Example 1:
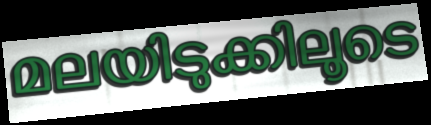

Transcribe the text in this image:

മലയിടുക്കിലൂടെ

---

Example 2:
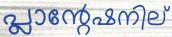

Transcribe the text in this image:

പ്ലാന്റേഷനില്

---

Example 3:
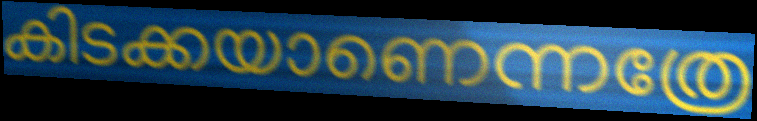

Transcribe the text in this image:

കിടക്കയാണെന്നത്രേ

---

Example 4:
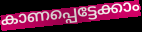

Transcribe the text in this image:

കാണപ്പെട്ടേക്കാം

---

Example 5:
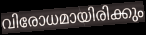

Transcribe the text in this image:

വിരോധമായിരിക്കും